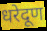
धरेदूण